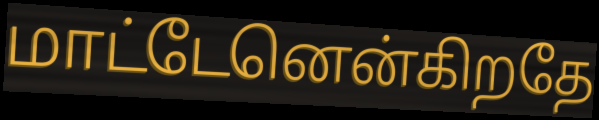
மாட்டேனென்கிறதே